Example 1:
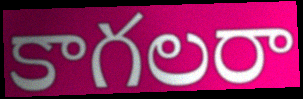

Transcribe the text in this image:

కాగలరా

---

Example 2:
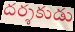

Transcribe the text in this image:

దర్శకుడు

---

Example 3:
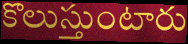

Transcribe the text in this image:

కొలుస్తుంటారు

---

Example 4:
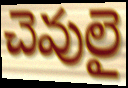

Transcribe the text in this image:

చెవులై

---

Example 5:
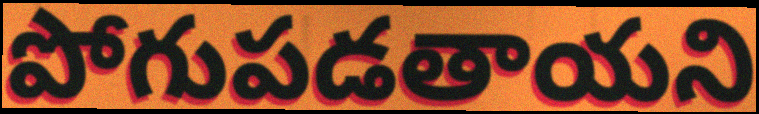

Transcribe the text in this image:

పోగుపడతాయని